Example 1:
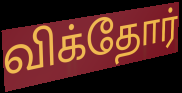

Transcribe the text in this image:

விக்தோர்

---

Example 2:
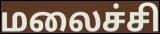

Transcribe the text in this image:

மலைச்சி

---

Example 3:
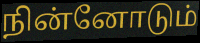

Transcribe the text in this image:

நின்னோடும்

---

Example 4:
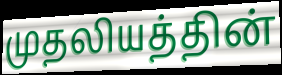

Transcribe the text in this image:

முதலியத்தின்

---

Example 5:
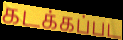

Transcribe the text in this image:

கடக்கப்பட